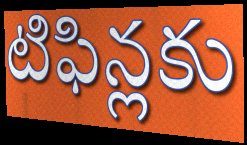
టిఫిన్లకు